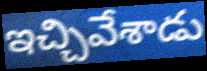
ఇచ్చివేశాడు